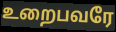
உறைபவரே